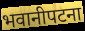
भवानीपटना